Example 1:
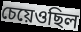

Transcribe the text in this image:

চেয়েওছিল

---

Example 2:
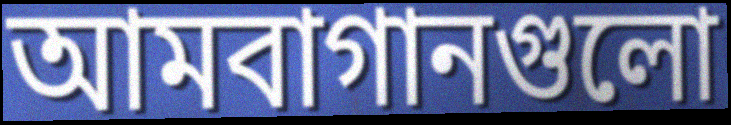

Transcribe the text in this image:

আমবাগানগুলো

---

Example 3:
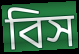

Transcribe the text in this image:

বিস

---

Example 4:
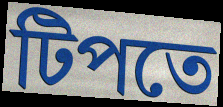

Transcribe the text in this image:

টিপতে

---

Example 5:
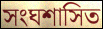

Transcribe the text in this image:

সংঘশাসিত